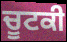
ਚੂਟਕੀ